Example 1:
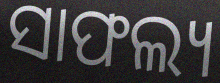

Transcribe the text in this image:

ସାଫଲ୍ଯ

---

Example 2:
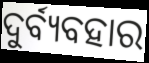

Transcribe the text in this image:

ଦୁର୍ବ୍ୟବହାର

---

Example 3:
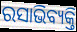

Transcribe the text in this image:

ରସାଭିବ୍ୟକ୍ତି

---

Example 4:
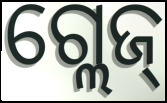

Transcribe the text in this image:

ଗ୍ଲେଜ୍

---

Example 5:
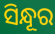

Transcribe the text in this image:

ସିନ୍ଧୂର